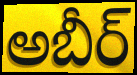
అబీర్